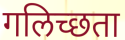
गलिच्छता